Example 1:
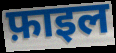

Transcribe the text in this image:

फ़ाइल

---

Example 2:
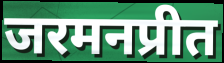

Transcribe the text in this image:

जरमनप्रीत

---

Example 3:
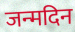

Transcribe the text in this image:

जन्‍मदिन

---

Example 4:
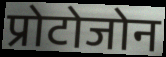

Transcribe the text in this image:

प्रोटोजोन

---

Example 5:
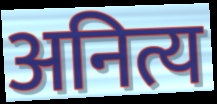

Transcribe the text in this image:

अनित्य